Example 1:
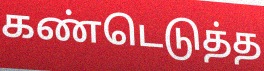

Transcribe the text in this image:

கண்டெடுத்த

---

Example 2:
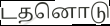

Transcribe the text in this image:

டதனொடு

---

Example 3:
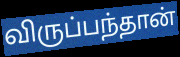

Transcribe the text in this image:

விருப்பந்தான்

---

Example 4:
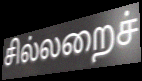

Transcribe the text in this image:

சில்லறைச்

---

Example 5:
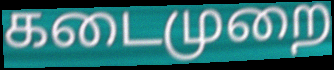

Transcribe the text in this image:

கடைமுறை